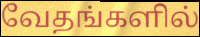
வேதங்களில்